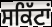
ਸਕਿੱਟਾਂ